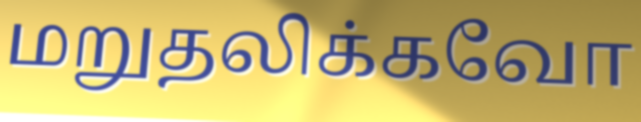
மறுதலிக்கவோ